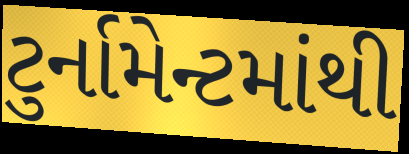
ટુર્નામેન્ટમાંથી